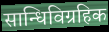
सान्धिविग्रहिक